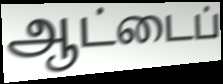
ஆட்டைப்